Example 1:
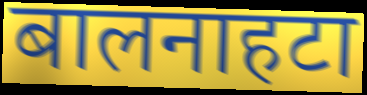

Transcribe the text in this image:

बालनाहटा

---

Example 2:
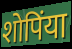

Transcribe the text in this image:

शोपिंया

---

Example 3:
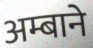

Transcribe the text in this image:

अम्बाने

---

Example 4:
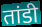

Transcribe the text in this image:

तांडी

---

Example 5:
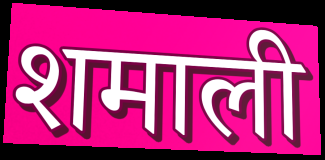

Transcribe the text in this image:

शमाली